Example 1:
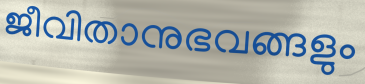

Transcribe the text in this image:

ജീവിതാനുഭവങ്ങളും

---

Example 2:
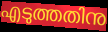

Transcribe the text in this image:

എടുത്തതിനു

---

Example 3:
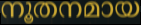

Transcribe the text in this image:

നൂതനമായ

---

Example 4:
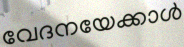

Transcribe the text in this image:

വേദനയേക്കാൾ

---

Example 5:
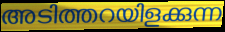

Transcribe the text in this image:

അടിത്തറയിളക്കുന്ന